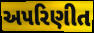
અપરિણીત